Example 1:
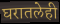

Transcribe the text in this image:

घरातलेही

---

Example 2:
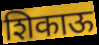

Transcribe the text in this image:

शिकाऊ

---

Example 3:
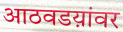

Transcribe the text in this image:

आठवडय़ांवर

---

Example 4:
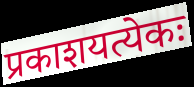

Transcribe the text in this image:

प्रकाशयत्येकः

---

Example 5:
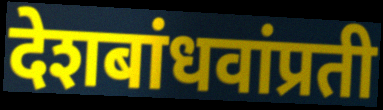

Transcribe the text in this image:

देशबांधवांप्रती